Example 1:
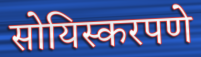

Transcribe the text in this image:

सोयिस्करपणे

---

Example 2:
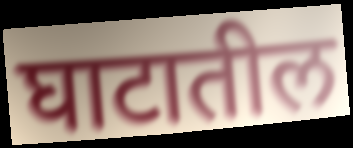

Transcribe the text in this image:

घाटातील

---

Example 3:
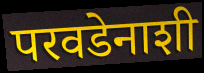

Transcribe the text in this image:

परवडेनाशी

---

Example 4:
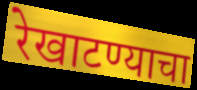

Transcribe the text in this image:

रेखाटण्याचा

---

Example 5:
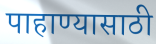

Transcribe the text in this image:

पाहाण्यासाठी